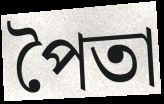
পৈতা